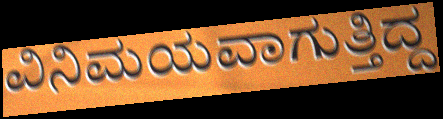
ವಿನಿಮಯವಾಗುತ್ತಿದ್ದ